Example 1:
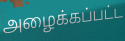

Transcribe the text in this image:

அழைக்கப்பட்ட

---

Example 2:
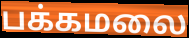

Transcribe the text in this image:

பக்கமலை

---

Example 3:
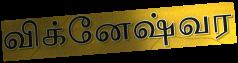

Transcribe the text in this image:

விக்னேஷ்வர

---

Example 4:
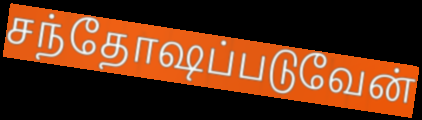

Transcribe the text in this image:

சந்தோஷப்படுவேன்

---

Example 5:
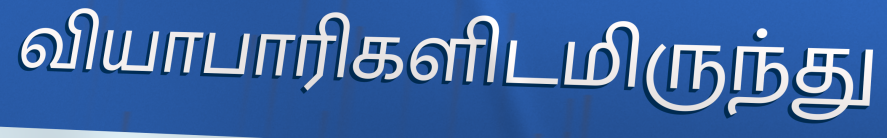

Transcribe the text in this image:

வியாபாரிகளிடமிருந்து